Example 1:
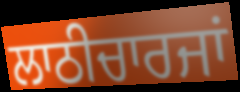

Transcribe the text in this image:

ਲਾਠੀਚਾਰਜਾਂ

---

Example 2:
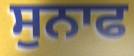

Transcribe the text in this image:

ਸੁਨਾਫ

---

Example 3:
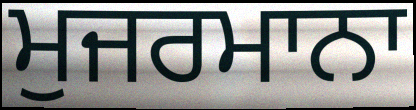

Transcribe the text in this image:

ਮੁਜਰਮਾਨਾ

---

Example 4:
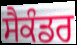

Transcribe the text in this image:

ਸੈਕੰਡਰ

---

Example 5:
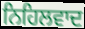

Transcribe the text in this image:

ਨਿਹਿਲਵਾਦ